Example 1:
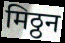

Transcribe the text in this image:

मिठ्ठन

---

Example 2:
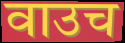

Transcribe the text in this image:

वाउच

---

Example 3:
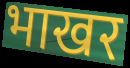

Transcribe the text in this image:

भाखर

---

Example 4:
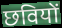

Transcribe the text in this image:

छवियों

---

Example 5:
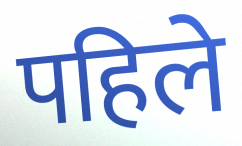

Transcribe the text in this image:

पहिले